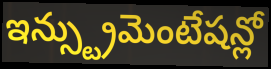
ఇన్స్ట్రుమెంటేషన్లో